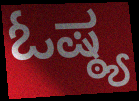
ಓಷ್ಠ್ಯ